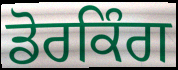
ਡੋਰਕਿੰਗ